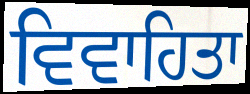
ਵਿਵਾਹਿਤਾ